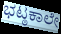
ಭಟ್ಠಕಾಲೇ